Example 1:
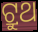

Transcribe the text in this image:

ଟ୍ରୁଥ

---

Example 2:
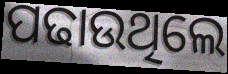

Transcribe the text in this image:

ପଢାଉଥିଲେ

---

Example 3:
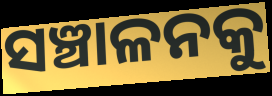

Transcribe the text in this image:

ସଞ୍ଚାଳନକୁ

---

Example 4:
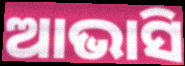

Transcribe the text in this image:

ଆଭାସି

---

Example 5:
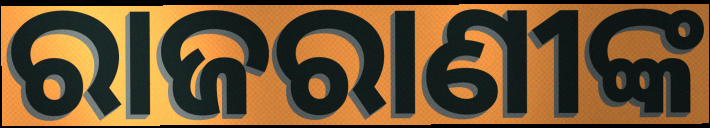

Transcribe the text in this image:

ରାଜରାଣୀଙ୍କ